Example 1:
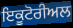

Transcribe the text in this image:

ਇਕੂਟੋਰੀਅਲ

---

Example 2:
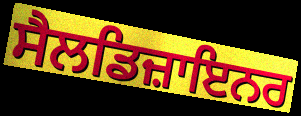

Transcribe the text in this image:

ਸੈਲਡਿਜ਼ਾਇਨਰ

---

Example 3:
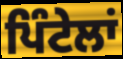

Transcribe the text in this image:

ਪਿੰਟੇਲਾਂ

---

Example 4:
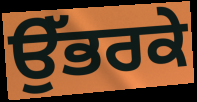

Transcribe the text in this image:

ਉੱਭਰਕੇ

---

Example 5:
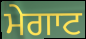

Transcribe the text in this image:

ਮੇਗਾਟ